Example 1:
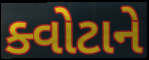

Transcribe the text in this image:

ક્વોટાને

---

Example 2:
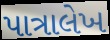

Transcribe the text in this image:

પાત્રાલેખ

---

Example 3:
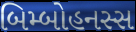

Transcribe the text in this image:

બિમ્બોહનસ્સ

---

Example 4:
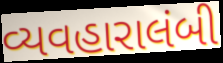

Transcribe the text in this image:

વ્યવહારાલંબી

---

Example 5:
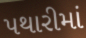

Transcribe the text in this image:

પથારીમાં